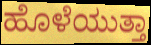
ಹೊಳೆಯುತ್ತಾ